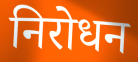
निरोधन